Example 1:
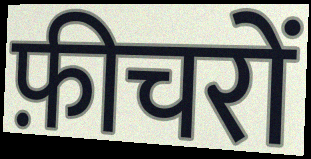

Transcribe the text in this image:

फ़ीचरों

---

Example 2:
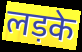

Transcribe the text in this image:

लड़के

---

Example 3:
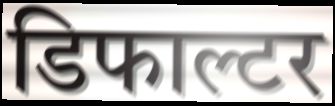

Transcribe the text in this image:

डिफाल्टर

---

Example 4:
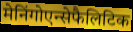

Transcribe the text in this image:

मेनिंगोएन्सेफैलिटिक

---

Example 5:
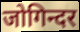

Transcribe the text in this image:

जोगिन्दर